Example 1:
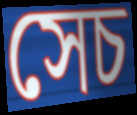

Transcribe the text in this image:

সেচ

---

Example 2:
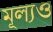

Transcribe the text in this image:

মূল্যও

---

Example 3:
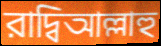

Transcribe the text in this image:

রাদ্বিআল্লাহু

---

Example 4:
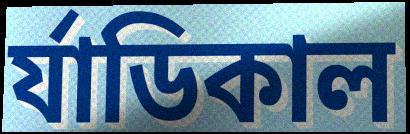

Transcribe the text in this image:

র্যাডিকাল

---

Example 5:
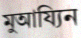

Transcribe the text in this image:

মুআয্যিন